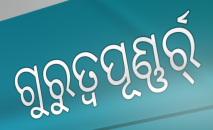
ଗୁରୁତ୍ୱପୂଣ୍ଣର୍ର୍